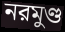
নরমুণ্ড